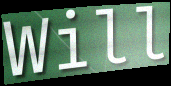
Will